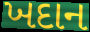
ખદાન